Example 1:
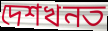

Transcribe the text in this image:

দেশখনত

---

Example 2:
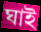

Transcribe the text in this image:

ঘাই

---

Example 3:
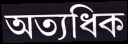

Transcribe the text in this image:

অত্যধিক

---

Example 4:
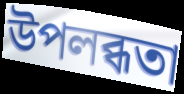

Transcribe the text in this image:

উপলব্ধতা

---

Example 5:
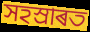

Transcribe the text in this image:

সহস্ৰাৰত